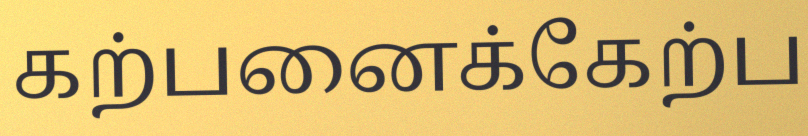
கற்பனைக்கேற்ப